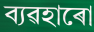
ব্যৱহাৰো